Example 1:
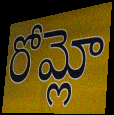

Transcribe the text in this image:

రోమ్లో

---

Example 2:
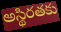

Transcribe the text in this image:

అస్థిరతకు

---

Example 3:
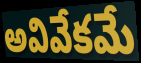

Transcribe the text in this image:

అవివేకమే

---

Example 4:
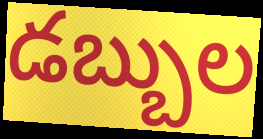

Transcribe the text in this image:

డబ్బుల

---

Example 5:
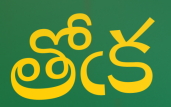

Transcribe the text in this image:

తోఁక